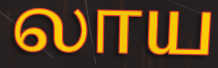
லாய